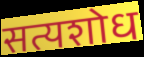
सत्यशोध